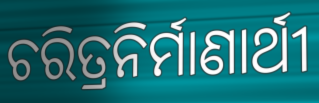
ଚରିତ୍ରନିର୍ମାଣାର୍ଥୀ